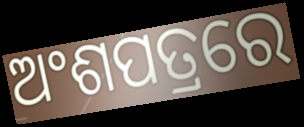
ଅଂଶପତ୍ରରେ